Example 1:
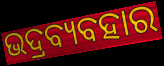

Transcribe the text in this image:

ଭଦ୍ରବ୍ୟବହାର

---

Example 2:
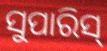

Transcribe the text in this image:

ସୁପାରିସ୍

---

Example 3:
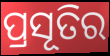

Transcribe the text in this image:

ପ୍ରସୂତିର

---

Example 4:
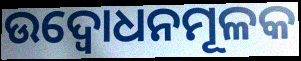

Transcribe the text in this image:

ଉଦ୍ବୋଧନମୂଳକ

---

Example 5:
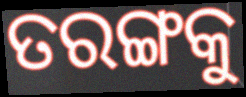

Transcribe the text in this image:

ତରଙ୍ଗକୁ